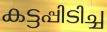
കട്ടപ്പിടിച്ച